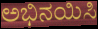
ಅಭಿನಯಿಸಿ